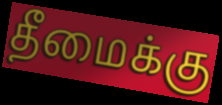
தீமைக்கு